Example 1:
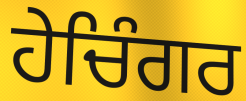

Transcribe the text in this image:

ਹੇਚਿੰਗਰ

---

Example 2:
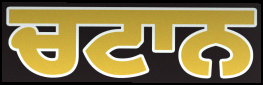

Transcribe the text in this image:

ਚਟਾਨ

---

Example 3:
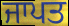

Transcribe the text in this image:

ਜਾਪਤ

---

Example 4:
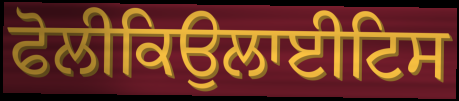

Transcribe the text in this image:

ਫੋਲੀਕਿਉਲਾਈਟਿਸ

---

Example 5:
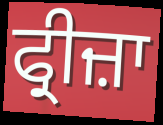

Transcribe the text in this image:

ਫ੍ਰੀਜ਼ਾ